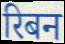
रिबन